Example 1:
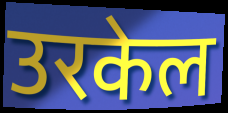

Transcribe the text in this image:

उरकेल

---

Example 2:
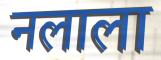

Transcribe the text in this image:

नलाला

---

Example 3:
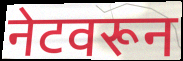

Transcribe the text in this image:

नेटवरून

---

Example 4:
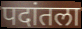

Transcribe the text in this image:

पदांतला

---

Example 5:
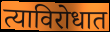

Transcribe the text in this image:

त्याविरोधात